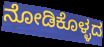
ನೋಡಿಕೊಳ್ಳದ